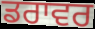
ਡਰਾਵਰ